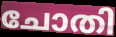
ചോതി